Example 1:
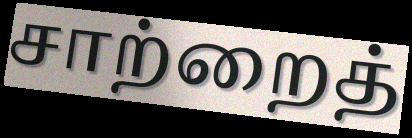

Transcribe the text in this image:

சாற்றைத்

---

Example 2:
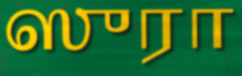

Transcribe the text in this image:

ஸுரா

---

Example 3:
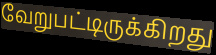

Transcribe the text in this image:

வேறுபட்டிருக்கிறது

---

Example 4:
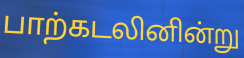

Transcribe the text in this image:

பாற்கடலினின்று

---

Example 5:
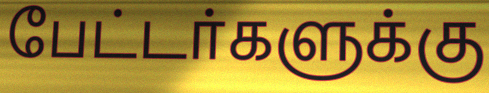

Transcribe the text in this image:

பேட்டர்களுக்கு